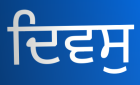
ਦਿਵਸੁ